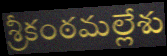
శ్రీకంఠమల్లేశు